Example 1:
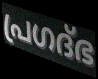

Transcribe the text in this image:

പ്രഗദ്ഭ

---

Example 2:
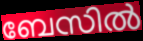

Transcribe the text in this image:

ബേസിൽ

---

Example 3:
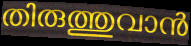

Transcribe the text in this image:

തിരുത്തുവാൻ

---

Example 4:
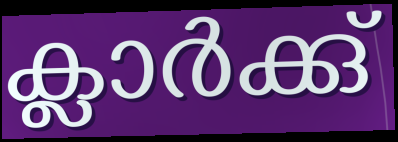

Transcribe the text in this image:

ക്ലാർക്കു്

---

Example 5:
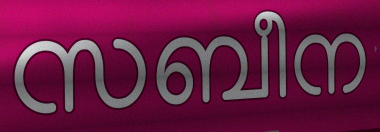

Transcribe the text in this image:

സബീന